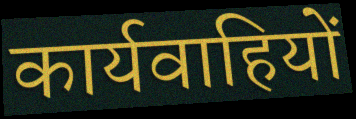
कार्यवाहियों